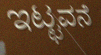
ಇಟ್ಟವನೆ